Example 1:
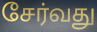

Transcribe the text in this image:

சேர்வது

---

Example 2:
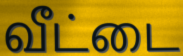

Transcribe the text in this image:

வீட்டை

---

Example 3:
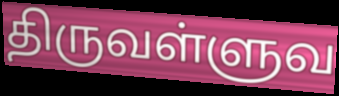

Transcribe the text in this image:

திருவள்ளுவ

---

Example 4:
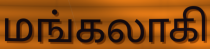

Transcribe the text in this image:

மங்கலாகி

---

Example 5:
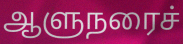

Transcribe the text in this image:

ஆளுநரைச்